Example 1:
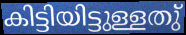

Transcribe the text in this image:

കിട്ടിയിട്ടുള്ളതു്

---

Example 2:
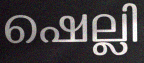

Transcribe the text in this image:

ഷെല്ലി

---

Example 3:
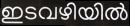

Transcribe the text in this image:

ഇടവഴിയിൽ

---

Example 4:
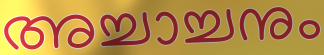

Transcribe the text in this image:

അച്ചാച്ചനും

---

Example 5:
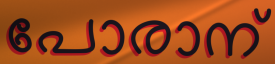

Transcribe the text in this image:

പോരാന്